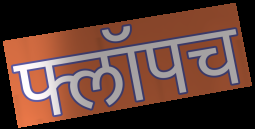
फ्लॉपच